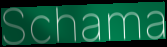
Schama